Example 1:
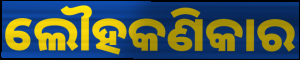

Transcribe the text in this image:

ଲୌହକଣିକାର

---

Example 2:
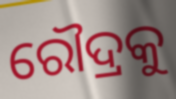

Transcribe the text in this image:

ରୌଦ୍ରକୁ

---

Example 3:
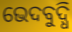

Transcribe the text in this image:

ଭେଦବୁଦ୍ଧି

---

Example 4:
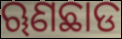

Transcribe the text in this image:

ୠଣଛାଡ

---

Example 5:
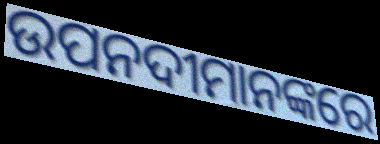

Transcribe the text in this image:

ଉପନଦୀମାନଙ୍କରେ